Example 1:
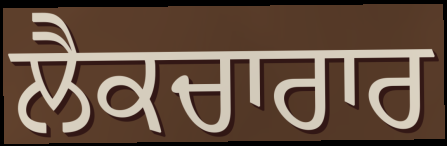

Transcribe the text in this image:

ਲੈਕਚਾਰਾਰ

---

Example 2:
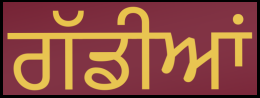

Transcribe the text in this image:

ਗੱਡੀਆਂ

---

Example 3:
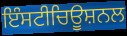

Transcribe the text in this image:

ਇੰਸਟੀਚਿਊਸ਼ਨਲ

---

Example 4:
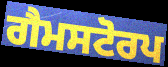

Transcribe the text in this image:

ਗੈਮਸਟੋਰਪ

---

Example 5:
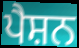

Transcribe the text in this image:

ਪੈਸ਼ਨ